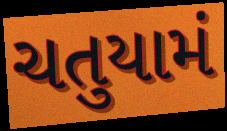
ચતુયામં